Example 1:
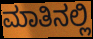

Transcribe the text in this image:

ಮಾತಿನಲ್ಲಿ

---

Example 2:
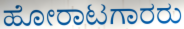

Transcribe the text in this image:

ಹೋರಾಟಗಾರರು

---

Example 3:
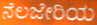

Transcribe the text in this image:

ನೆಲಜೇರಿಯ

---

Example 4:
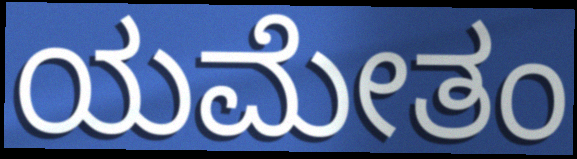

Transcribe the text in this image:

ಯಮೇತಂ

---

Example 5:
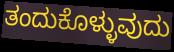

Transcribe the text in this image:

ತಂದುಕೊಳ್ಳುವುದು